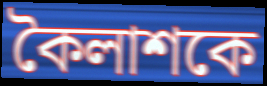
কৈলাশকে